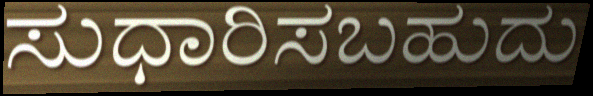
ಸುಧಾರಿಸಬಹುದು